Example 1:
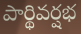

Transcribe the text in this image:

పార్థివర్షభ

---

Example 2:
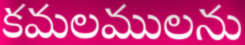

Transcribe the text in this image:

కమలములను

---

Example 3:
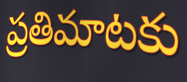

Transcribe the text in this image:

ప్రతిమాటకు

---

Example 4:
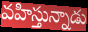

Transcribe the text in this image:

వహిస్తున్నాడు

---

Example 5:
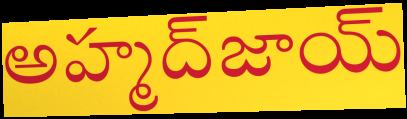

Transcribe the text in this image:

అహ్మద్‌జాయ్